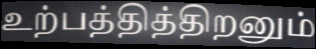
உற்பத்தித்திறனும்